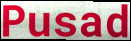
Pusad